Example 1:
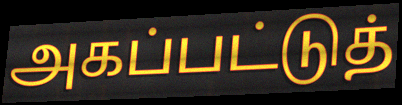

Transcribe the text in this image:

அகப்பட்டுத்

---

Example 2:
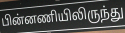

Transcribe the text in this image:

பின்னணியிலிருந்து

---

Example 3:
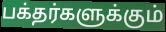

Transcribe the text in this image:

பக்தர்களுக்கும்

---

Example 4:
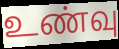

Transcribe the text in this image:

உண்வு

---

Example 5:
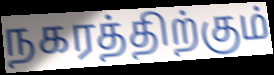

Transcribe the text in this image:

நகரத்திற்கும்